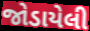
જોડાયેલી